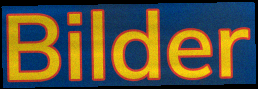
Bilder